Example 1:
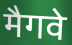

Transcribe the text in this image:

मैगवे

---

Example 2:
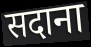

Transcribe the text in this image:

सदाना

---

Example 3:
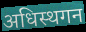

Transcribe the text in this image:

अधिस्थगन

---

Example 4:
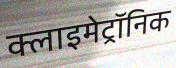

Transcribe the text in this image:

क्लाइमेट्रॉनिक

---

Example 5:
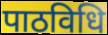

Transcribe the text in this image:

पाठविधि